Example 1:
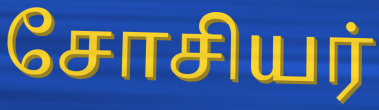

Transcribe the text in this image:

சோசியர்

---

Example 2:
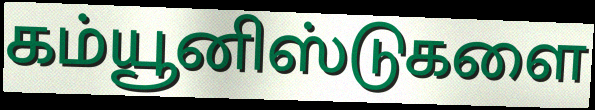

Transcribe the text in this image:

கம்யூனிஸ்டுகளை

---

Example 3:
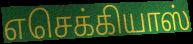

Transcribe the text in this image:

எசெக்கியாஸ்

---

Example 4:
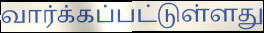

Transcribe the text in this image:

வார்க்கப்பட்டுள்ளது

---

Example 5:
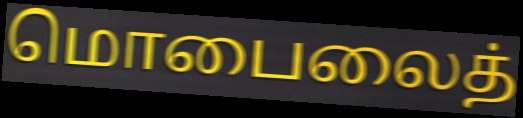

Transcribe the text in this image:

மொபைலைத்